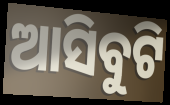
ଆସିବୁଟି